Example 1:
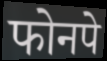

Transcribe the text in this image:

फोनपे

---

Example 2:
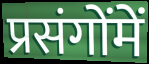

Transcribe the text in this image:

प्रसंगोंमें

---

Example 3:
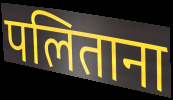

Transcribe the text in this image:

पलिताना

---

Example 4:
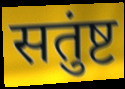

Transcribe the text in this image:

सतुंष्ट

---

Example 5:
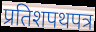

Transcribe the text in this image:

प्रतिशपथपत्र